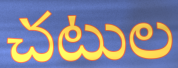
చటుల